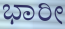
ಭಾರೀ